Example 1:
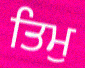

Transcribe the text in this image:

ਤਿਮੁ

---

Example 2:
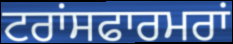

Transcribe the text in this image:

ਟਰਾਂਸਫਾਰਮਰਾਂ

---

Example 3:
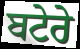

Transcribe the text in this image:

ਬਟੇਰੇ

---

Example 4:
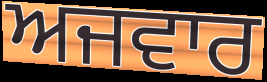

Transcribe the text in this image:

ਅਜਵਾਰ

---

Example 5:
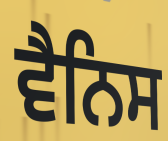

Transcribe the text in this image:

ਵੈਨਿਸ